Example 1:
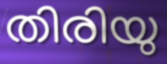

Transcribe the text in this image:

തിരിയു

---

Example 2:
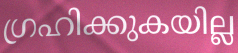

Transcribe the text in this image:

ഗ്രഹിക്കുകയില്ല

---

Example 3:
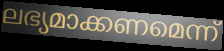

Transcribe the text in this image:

ലഭ്യമാക്കണമെന്ന്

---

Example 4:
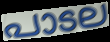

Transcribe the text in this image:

പാടല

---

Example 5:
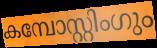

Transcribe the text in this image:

കമ്പോസ്റ്റിംഗും